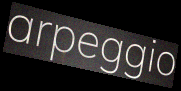
arpeggio